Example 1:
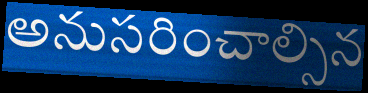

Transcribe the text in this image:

అనుసరించాల్సిన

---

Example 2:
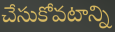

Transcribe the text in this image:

చేసుకోవటాన్ని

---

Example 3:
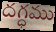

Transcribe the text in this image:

దగ్ధము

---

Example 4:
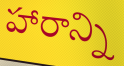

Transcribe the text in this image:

హారాన్ని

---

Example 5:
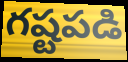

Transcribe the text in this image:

గష్టపడి